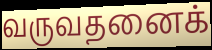
வருவதனைக்